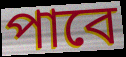
পাবে